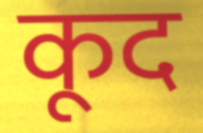
कूद